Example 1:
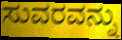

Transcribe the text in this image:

ಸುವರವನ್ನು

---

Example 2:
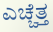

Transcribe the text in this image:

ಎಚ್ಚೆತ್ತ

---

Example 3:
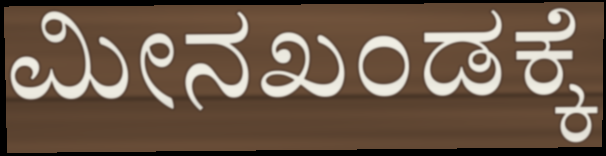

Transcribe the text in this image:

ಮೀನಖಂಡಕ್ಕೆ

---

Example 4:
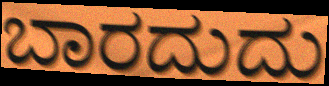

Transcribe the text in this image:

ಬಾರದುದು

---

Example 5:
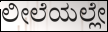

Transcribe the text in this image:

ಲೀಲೆಯಲ್ಲೇ